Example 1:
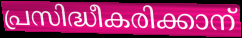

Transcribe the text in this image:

പ്രസിദ്ധീകരിക്കാന്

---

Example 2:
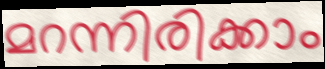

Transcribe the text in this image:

മറന്നിരിക്കാം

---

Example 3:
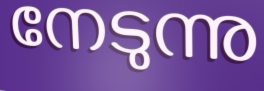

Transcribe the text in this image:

നേടുന്നു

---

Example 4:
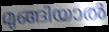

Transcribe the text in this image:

മുങ്ങിയാൽ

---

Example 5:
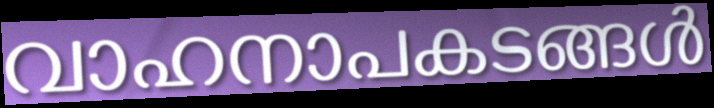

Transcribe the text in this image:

വാഹനാപകടങ്ങൾ